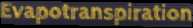
Evapotranspiration